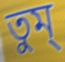
তুম্